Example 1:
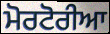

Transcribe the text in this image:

ਮੋਰਟੋਰੀਆ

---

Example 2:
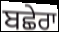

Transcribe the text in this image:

ਬਛੇਰਾ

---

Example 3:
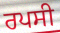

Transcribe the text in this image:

ਰਪਸੀ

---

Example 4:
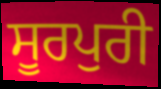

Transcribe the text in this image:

ਸੂਰਪੁਰੀ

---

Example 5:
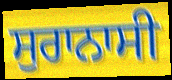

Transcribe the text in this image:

ਸੁਰਾਨਾਸੀ